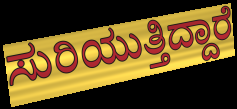
ಸುರಿಯುತ್ತಿದ್ದಾರೆ